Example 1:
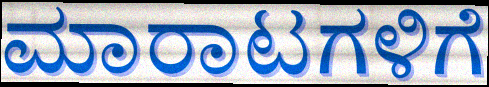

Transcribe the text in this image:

ಮಾರಾಟಗಳಿಗೆ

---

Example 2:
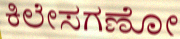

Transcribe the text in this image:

ಕಿಲೇಸಗಣೋ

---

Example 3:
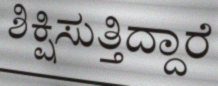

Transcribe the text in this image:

ಶಿಕ್ಷಿಸುತ್ತಿದ್ದಾರೆ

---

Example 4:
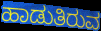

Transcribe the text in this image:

ಹಾಡುತಿರುವ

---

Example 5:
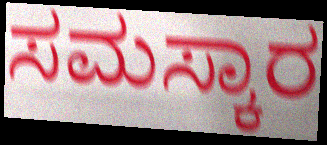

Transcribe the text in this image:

ಸಮಸ್ಕಾರ